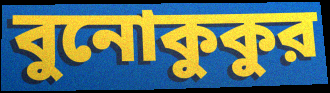
বুনোকুকুর